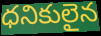
ధనికులైన